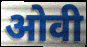
ओवी